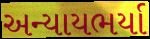
અન્યાયભર્યા